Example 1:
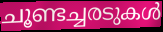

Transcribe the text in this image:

ചൂണ്ടച്ചരടുകൾ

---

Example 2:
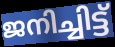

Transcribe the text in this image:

ജനിച്ചിട്ട്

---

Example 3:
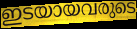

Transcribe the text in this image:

ഇടയായവരുടെ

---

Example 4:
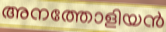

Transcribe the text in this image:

അനത്തോളിയൻ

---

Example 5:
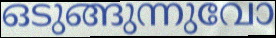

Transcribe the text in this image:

ഒടുങ്ങുന്നുവോ